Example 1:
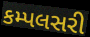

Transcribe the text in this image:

કમ્પલસરી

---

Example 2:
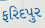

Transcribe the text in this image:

ફરિદપુર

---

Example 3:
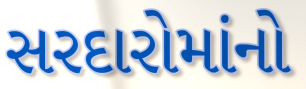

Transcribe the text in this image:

સરદારોમાંનો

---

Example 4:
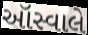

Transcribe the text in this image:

ઑસ્વાલે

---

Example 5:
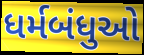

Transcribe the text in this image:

ધર્મબંધુઓ